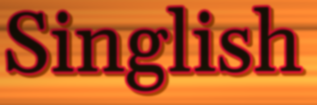
Singlish